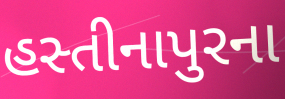
હસ્તીનાપુરના